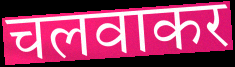
चलवाकर